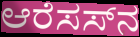
ಆರೆಸಸ್‌ನ